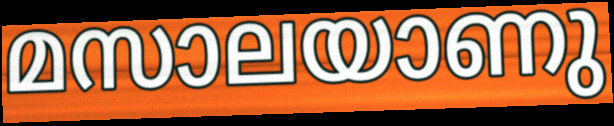
മസാലയാണു